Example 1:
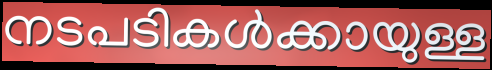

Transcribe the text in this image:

നടപടികൾക്കായുള്ള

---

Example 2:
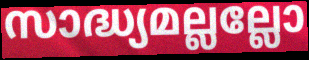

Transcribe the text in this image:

സാദ്ധ്യമല്ലല്ലോ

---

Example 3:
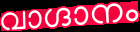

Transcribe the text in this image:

വാഗ്ദാനം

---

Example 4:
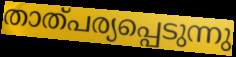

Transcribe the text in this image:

താത്പര്യപ്പെടുന്നു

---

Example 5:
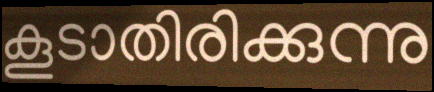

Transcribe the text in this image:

കൂടാതിരിക്കുന്നു